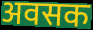
अवसक